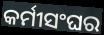
କର୍ମୀସଂଘର